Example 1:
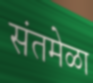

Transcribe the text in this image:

संतमेळा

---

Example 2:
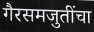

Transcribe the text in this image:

गैरसमजुतींचा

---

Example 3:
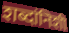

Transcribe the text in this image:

शब्दांनिशी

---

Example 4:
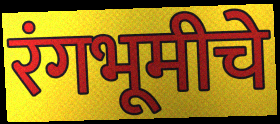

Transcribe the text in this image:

रंगभूमीचे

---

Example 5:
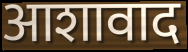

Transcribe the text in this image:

आशावाद